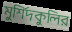
মুর্শিদকুলির